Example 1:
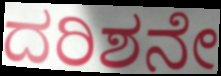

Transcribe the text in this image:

ದರಿಶನೇ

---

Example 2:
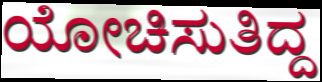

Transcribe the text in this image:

ಯೋಚಿಸುತಿದ್ದ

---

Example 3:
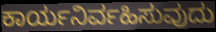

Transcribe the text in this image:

ಕಾರ್ಯನಿರ್ವಹಿಸುವುದು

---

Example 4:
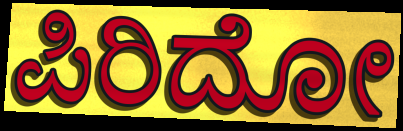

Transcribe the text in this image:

ಪಿರಿದೋ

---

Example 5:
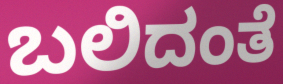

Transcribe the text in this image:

ಬಲಿದಂತೆ